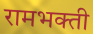
रामभक्ती